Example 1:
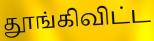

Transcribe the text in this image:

தூங்கிவிட்ட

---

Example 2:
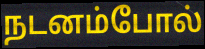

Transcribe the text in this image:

நடனம்போல்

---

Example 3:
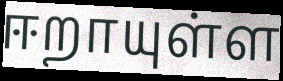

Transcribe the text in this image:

ஈறாயுள்ள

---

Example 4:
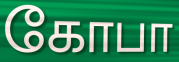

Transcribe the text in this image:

கோபா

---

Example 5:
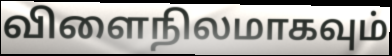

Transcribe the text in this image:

விளைநிலமாகவும்